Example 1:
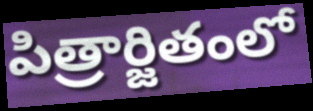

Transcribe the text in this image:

పిత్రార్జితంలో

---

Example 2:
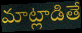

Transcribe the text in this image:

మాట్లాడితే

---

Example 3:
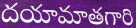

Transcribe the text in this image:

దయామాతగారి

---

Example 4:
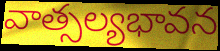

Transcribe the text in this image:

వాత్సల్యభావన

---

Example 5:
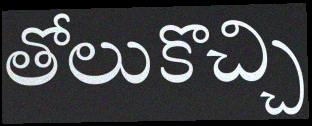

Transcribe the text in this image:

తోలుకొచ్చి